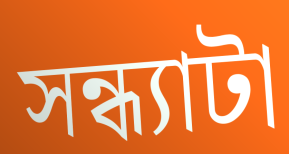
সন্ধ্যাটা